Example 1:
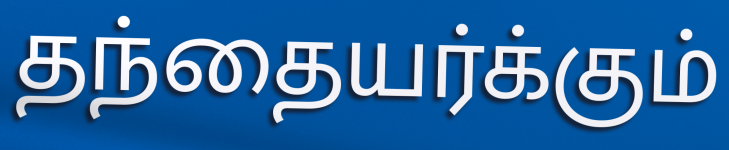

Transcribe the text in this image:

தந்தையர்க்கும்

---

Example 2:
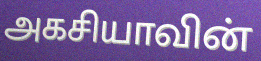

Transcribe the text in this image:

அகசியாவின்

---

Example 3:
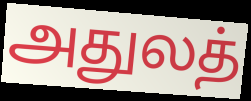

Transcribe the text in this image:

அதுலத்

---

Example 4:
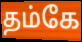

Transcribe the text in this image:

தம்கே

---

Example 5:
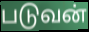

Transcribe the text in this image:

படுவன்